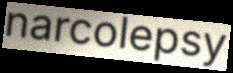
narcolepsy